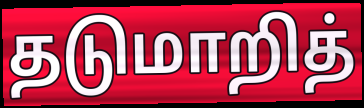
தடுமாறித்